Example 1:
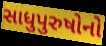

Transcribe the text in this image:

સાધુપુરુષોનો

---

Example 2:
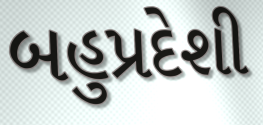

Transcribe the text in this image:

બહુપ્રદેશી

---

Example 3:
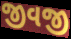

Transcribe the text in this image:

જીવજી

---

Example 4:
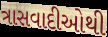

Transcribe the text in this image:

ત્રાસવાદીઓથી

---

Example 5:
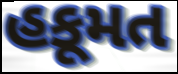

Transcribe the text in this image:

હકૂમત